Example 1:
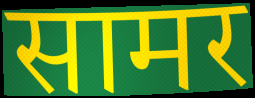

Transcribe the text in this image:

सामर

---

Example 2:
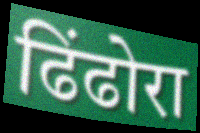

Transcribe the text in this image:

ढिंढोरा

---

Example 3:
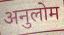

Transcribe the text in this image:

अनुलोम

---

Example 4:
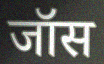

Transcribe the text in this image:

जॉस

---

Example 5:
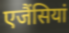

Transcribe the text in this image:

एजैंसियां